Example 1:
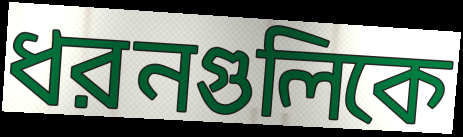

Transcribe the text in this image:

ধরনগুলিকে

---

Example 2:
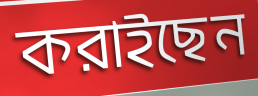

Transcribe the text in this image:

করাইছেন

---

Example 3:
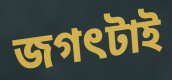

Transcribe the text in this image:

জগৎটাই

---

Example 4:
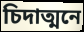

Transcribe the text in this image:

চিদাত্মনে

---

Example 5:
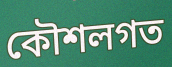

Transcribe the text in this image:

কৌশলগত